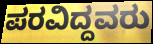
ಪರವಿದ್ದವರು